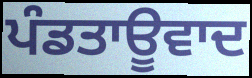
ਪੰਡਤਾਊਵਾਦ